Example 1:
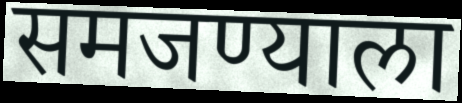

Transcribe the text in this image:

समजण्याला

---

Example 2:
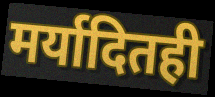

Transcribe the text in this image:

मर्यादितही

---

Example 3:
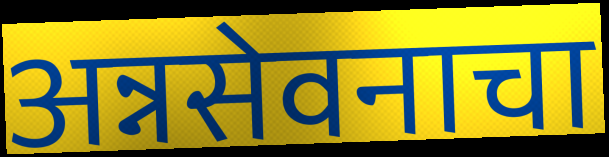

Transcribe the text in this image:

अन्नसेवनाचा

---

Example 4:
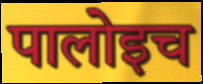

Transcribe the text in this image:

पालोइच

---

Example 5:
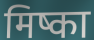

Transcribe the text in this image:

मिष्का